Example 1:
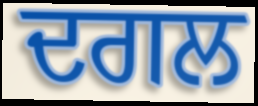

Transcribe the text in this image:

ਦਗਲ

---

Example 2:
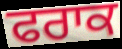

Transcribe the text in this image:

ਫਰਾਕ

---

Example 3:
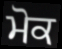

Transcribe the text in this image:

ਮੋਕ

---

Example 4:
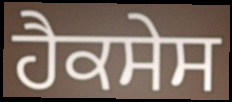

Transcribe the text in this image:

ਹੈਕਸੇਸ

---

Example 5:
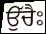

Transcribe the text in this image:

ਉੱਚੈਃ